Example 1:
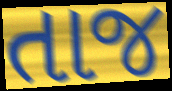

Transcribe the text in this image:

તાજ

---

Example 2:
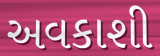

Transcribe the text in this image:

અવકાશી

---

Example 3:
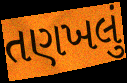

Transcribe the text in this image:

તણખલું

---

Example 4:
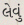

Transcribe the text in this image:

લેવું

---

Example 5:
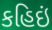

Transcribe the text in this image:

કહિઇં